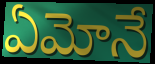
ఏమోనే